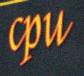
cpu